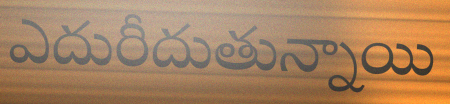
ఎదురీదుతున్నాయి